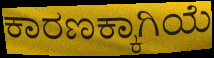
ಕಾರಣಕ್ಕಾಗಿಯೆ